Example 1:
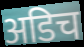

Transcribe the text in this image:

अडिच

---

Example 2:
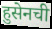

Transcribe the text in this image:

हुसेनची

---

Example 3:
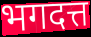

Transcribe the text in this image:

भगदत्त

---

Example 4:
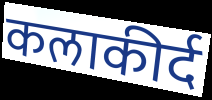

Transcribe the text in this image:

कलाकीर्द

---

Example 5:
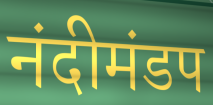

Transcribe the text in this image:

नंदीमंडप